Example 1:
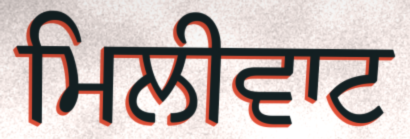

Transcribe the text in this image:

ਮਿਲੀਵਾਟ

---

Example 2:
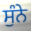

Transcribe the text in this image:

ਸੁੰਨੇ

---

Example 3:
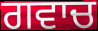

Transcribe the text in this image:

ਗਵਾਚ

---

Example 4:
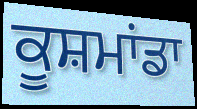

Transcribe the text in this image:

ਕੂਸ਼ਮਾਂਡਾ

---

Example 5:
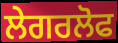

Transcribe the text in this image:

ਲੇਗਰਲੋਫ